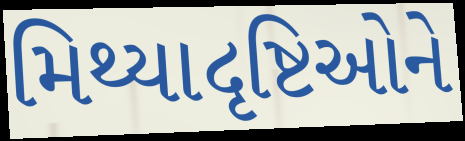
મિથ્યાદૃષ્ટિઓને